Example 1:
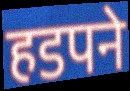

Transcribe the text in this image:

हडपने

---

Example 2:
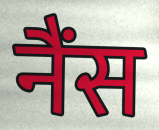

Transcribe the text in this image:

नैंस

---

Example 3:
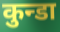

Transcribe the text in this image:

कुन्डा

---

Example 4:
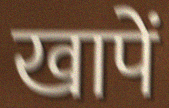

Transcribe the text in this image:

खापें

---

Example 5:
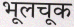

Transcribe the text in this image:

भूलचूक